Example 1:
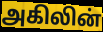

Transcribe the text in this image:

அகிலின்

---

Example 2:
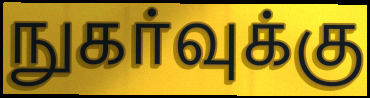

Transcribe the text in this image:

நுகர்வுக்கு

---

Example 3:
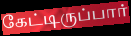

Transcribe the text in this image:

கேட்டிருப்பார்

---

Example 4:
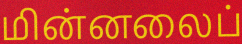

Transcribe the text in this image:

மின்னலைப்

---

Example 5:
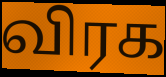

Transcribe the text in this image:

விரக